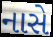
નાસે